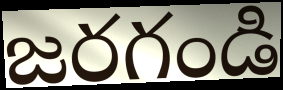
జరగండి